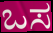
ಒಸ